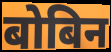
बोबिन